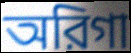
অরিগা